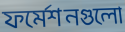
ফর্মেশনগুলো